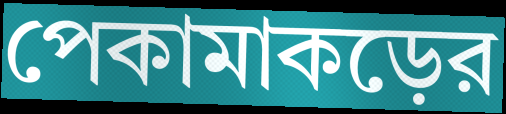
পেকামাকড়ের